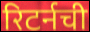
रिटर्नची